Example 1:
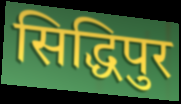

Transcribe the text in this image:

सिद्धिपुर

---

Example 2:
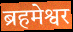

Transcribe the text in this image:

ब्रहमेश्वर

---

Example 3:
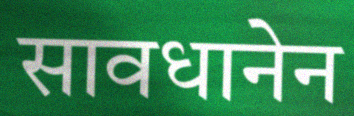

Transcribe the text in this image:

सावधानेन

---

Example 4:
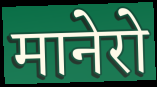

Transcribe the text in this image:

मानेरो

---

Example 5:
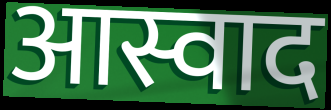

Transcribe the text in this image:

आस्‍वाद